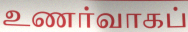
உணர்வாகப்